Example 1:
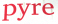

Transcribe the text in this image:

pyre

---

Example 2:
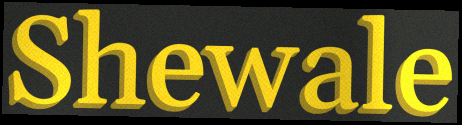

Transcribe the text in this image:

Shewale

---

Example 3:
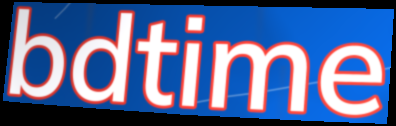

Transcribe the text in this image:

bdtime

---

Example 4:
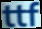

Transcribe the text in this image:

ttf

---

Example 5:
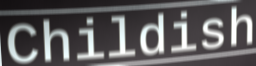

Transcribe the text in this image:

Childish